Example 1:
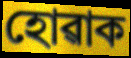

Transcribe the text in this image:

হোৱাক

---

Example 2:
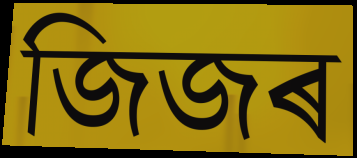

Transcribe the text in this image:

জিজৰ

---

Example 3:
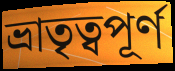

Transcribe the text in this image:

ভ্ৰাতৃত্বপূৰ্ণ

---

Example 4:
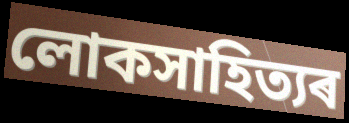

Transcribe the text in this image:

লোকসাহিত্যৰ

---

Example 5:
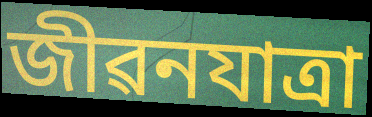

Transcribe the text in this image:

জীৱনযাত্ৰা